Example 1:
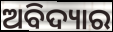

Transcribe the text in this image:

ଅବିଦ୍ୟାର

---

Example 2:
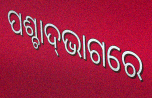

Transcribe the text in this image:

ପଶ୍ଚାଦ୍‍ଭାଗରେ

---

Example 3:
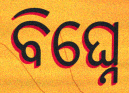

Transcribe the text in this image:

ବିଘ୍ନେ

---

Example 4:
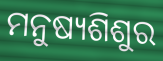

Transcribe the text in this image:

ମନୁଷ୍ୟଶିଶୁର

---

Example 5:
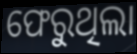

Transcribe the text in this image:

ଫେରୁଥିଲା